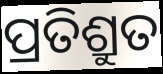
ପ୍ରତିଶ୍ରୁତ